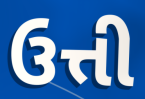
ઉત્તી